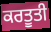
ਕਰਤੂਤੀ